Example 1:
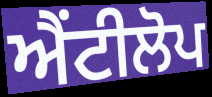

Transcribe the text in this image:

ਐਂਟੀਲੋਪ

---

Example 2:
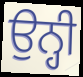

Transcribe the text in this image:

ਉਨ੍ਹੀ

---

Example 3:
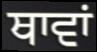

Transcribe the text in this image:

ਥਾਵਾਂ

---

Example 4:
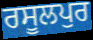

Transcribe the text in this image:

ਰਸੂਲਪੁਰ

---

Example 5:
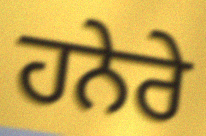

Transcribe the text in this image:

ਹਨੇਰੇ